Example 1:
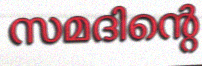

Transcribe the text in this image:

സമദിന്റെ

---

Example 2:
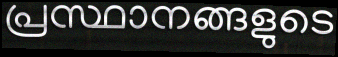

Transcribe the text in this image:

പ്രസ്ഥാനങ്ങളുടെ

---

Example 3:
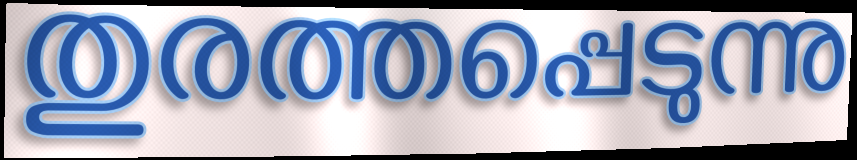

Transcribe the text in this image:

തുരത്തപ്പെടുന്നു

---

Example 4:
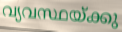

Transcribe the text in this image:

വ്യവസ്ഥയ്ക്കു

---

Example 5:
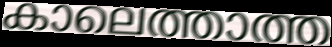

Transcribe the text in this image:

കാലെത്താത്ത